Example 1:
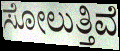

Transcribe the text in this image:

ಸೋಲುತ್ತಿವೆ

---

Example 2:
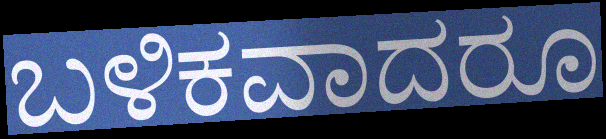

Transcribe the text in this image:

ಬಳಿಕವಾದರೂ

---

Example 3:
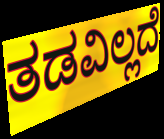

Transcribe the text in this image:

ತಡವಿಲ್ಲದೆ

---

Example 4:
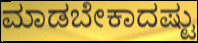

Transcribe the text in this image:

ಮಾಡಬೇಕಾದಷ್ಟು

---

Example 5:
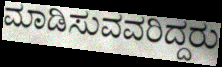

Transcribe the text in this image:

ಮಾಡಿಸುವವರಿದ್ದರು